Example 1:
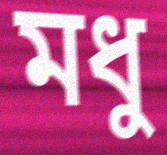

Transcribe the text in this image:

মধু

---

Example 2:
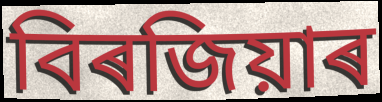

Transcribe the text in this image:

বিৰজিয়াৰ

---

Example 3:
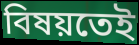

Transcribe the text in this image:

বিষয়তেই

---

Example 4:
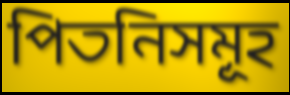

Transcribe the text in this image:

পিতনিসমূহ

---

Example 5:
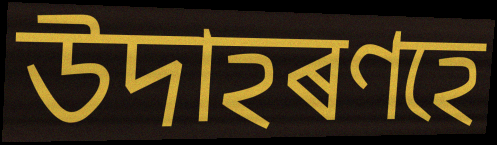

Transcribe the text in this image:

উদাহৰণহে